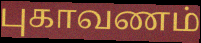
புகாவணம்